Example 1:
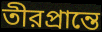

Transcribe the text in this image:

তীরপ্রান্তে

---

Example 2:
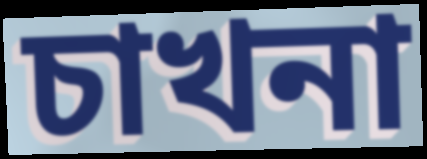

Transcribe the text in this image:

চাখনা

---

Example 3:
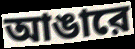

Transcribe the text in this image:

আঙারে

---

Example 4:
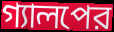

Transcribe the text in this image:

গ্যালপের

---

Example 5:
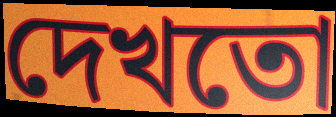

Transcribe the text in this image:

দেখতো